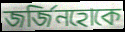
জর্জিনহোকে